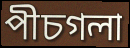
পীচগলা